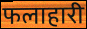
फलाहारी